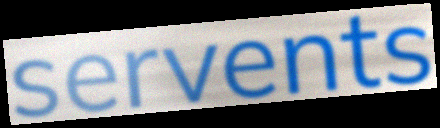
servents